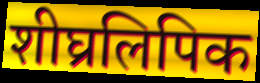
शीघ्रलिपिक